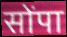
सोंपा